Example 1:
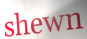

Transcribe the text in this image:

shewn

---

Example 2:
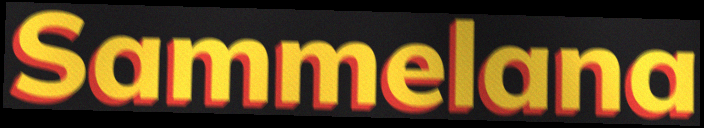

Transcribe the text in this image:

Sammelana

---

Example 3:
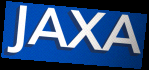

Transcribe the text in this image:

JAXA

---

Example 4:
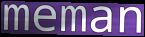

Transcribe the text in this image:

meman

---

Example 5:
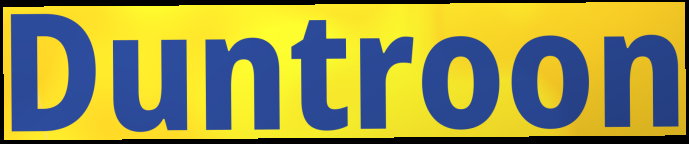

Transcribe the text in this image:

Duntroon